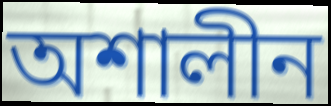
অশালীন